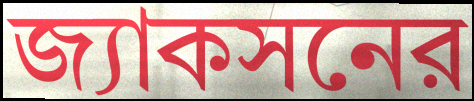
জ্যাকসনের